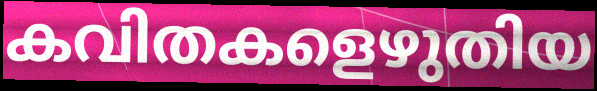
കവിതകളെഴുതിയ